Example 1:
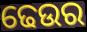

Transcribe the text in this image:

ଢେଉର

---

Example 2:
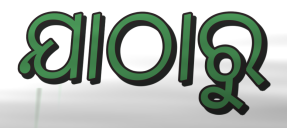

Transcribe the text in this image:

ଯାଠାରୁ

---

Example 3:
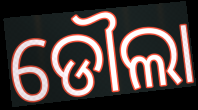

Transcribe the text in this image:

ଡୌଲା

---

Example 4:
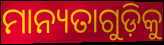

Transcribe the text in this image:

ମାନ୍ୟତାଗୁଡ଼ିକୁ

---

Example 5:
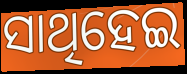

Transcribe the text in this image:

ସାଥିହେଇ